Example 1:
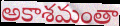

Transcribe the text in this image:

అకాశమంతా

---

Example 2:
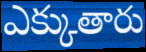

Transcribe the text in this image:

ఎక్కుతారు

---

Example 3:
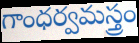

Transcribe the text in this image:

గాంధర్వమస్త్రం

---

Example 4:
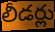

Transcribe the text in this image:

లీడర్లు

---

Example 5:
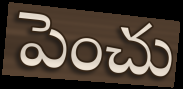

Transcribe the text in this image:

పెంచు